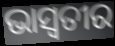
ଭାସ୍ୱତୀର